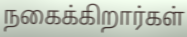
நகைக்கிறார்கள்